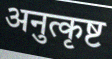
अनुत्कृष्ट